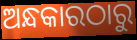
ଅନ୍ଧକାରଠାରୁ